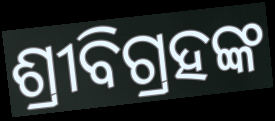
ଶ୍ରୀବିଗ୍ରହଙ୍କ